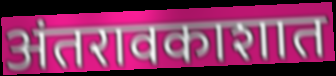
अंतरावकाशात